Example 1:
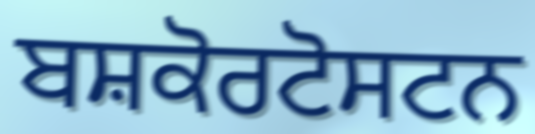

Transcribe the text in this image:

ਬਸ਼ਕੋਰਟੋਸਟਨ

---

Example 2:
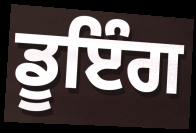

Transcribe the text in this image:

ਡੂਇੰਗ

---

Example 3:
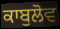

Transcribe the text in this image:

ਕਾਬੁਲੋਵ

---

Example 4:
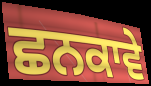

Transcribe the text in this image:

ਛਨਕਾਵੇ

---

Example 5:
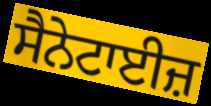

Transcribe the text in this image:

ਸੈਨੇਟਾਈਜ਼